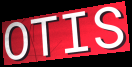
OTIS